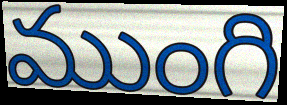
ముంగి